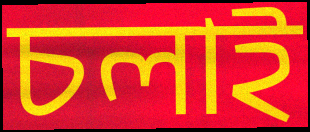
চলাই